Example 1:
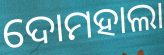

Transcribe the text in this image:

ଦୋମହାଲା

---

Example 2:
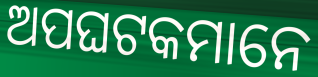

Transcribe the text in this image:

ଅପଘଟକମାନେ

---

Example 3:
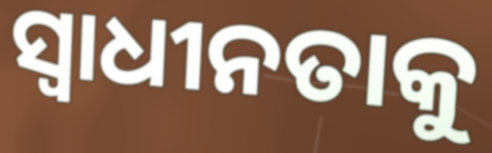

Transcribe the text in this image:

ସ୍ଵାଧୀନତାକୁ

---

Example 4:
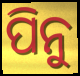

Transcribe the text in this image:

ପିନୁ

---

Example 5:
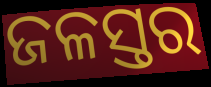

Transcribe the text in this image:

ଜଳସ୍ତର